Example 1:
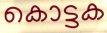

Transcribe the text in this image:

കൊട്ടക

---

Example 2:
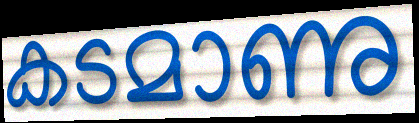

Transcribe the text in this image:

കടമാണു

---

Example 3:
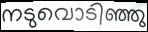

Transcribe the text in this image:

നടുവൊടിഞ്ഞു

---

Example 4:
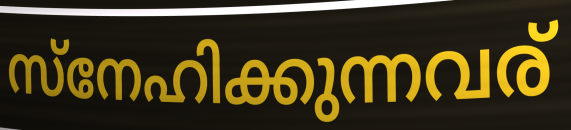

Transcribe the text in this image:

സ്നേഹിക്കുന്നവര്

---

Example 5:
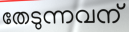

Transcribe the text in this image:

തേടുന്നവന്